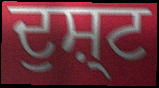
ਦੁਸ਼੍ਟ